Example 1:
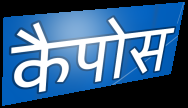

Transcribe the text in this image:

कैपोस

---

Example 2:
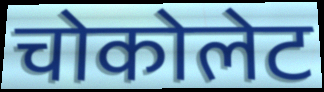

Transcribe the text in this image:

चोकोलेट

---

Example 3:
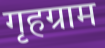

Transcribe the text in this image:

गृहग्राम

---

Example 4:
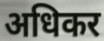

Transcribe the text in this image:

अधिकर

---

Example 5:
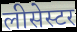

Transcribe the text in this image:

लीसेस्टर